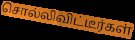
சொல்லிவிட்டீர்கள்